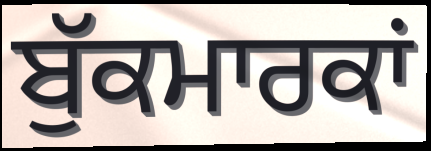
ਬੁੱਕਮਾਰਕਾਂ